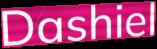
Dashiel